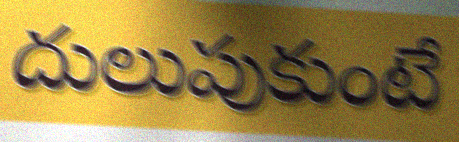
దులుపుకుంటే